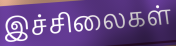
இச்சிலைகள்